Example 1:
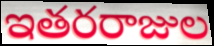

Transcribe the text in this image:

ఇతరరాజుల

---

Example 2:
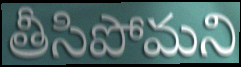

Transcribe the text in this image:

తీసిపోమని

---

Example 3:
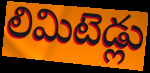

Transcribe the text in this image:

లిమిటెడ్లు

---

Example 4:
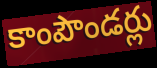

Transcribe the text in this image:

కాంపౌండర్లు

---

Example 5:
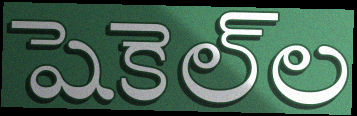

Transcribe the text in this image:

షెకెల్‌ల